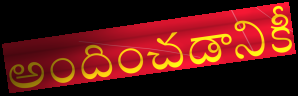
అందించడానికీ